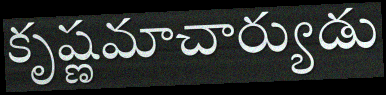
కృష్ణమాచార్యుడు